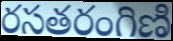
రసతరంగిణి